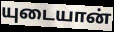
யுடையான்